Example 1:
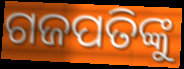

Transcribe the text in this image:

ଗଜପତିଙ୍କୁ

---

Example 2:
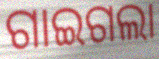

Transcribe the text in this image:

ଗାଇଗଲା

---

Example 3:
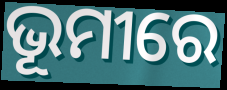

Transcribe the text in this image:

ଭୂମୀରେ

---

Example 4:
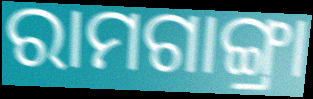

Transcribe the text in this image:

ରାମଗାଙ୍ଗ୍ରା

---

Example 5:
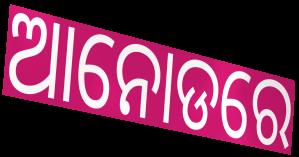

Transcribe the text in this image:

ଆନୋଡରେ